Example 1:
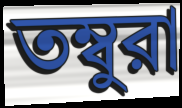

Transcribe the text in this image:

তম্বুরা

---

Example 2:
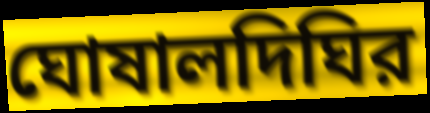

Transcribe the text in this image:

ঘোষালদিঘির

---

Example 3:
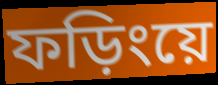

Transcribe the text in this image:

ফড়িংয়ে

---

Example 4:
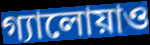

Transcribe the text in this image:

গ্যালোয়াও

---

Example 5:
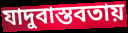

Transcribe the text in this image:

যাদুবাস্তবতায়